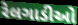
રેલગાડીઓ